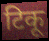
टिकू